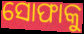
ସୋଫାକୁ